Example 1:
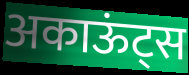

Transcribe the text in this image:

अकाऊंट्स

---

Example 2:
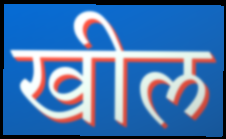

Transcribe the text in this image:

खील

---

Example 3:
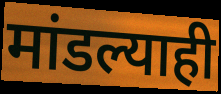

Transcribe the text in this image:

मांडल्याही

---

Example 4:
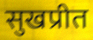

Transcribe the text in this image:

सुखप्रीत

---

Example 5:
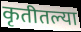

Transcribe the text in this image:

कृतीतल्या